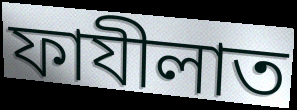
ফাযীলাত